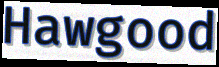
Hawgood